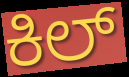
ಕಿಲ್